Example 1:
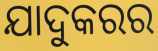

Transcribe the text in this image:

ଯାଦୁକରର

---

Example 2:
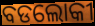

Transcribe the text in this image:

ବଡଲୋକୀ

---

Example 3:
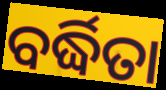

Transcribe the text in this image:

ବର୍ଦ୍ଧିତା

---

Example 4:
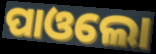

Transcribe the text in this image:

ପାଓଲୋ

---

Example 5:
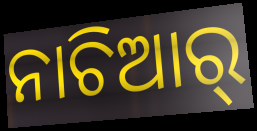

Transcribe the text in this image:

ନାଚିଆର୍